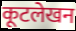
कूटलेखन